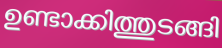
ഉണ്ടാക്കിത്തുടങ്ങി